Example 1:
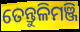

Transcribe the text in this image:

ତେନ୍ତୁଳିମଞ୍ଜି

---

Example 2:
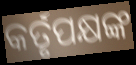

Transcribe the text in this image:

କର୍ତୃପକ୍ଷଙ୍କ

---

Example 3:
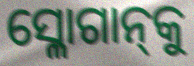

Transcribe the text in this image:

ସ୍ଳୋଗାନ୍‌କୁ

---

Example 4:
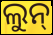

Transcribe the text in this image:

ଲୁନ୍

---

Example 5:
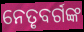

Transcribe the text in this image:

ନେତୃବର୍ଗଙ୍କ